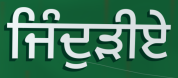
ਜਿੰਦੁੜੀਏ